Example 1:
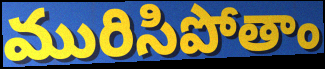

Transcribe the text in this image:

మురిసిపోతాం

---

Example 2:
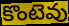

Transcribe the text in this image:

కొంటెవు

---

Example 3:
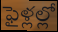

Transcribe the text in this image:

ఫైళ్లల్లో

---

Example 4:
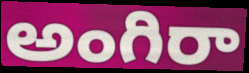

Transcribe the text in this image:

అంగిరా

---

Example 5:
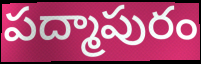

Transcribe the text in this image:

పద్మాపురం